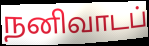
நனிவாடப்